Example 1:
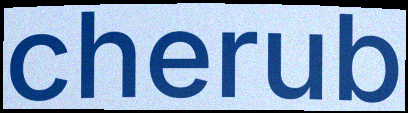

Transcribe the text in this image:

cherub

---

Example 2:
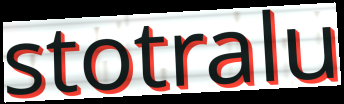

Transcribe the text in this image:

stotralu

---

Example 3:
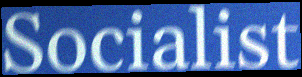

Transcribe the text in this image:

Socialist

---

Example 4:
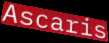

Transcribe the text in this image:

Ascaris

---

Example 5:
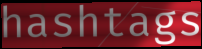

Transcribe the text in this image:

hashtags